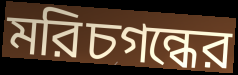
মরিচগন্ধের